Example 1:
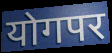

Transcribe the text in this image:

योगपर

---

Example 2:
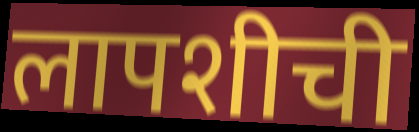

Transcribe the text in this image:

लापशीची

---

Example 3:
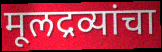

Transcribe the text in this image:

मूलद्रव्यांचा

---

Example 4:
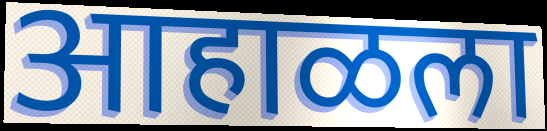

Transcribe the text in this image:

आहाळला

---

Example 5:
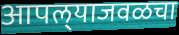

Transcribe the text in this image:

आपल्याजवळचा